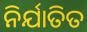
ନିର୍ଯାତିତ